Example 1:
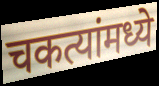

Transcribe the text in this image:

चकत्यांमध्ये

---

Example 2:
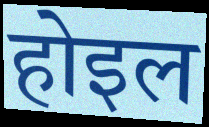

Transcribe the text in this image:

होइल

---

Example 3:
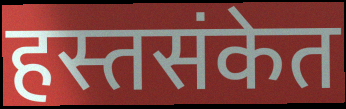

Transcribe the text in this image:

हस्तसंकेत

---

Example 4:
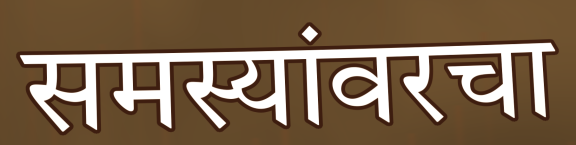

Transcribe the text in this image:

समस्यांवरचा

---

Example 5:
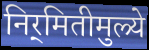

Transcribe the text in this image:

निर्मितीमुल्ये